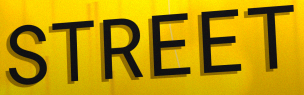
STREET